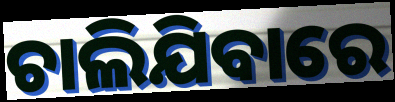
ଚାଲିଯିବାରେ